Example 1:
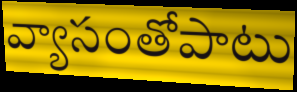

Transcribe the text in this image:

వ్యాసంతోపాటు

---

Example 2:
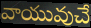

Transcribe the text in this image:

వాయువుచే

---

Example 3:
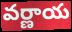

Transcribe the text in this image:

వర్ణాయ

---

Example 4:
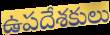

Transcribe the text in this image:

ఉపదేశకులు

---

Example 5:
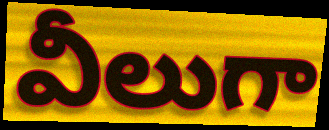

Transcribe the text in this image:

వీలుగా